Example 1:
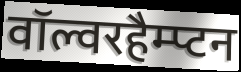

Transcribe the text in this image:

वॉल्वरहैम्प्टन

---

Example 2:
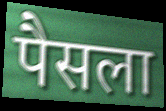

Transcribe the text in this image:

पैसला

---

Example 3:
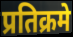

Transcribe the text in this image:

प्रतिक्रमे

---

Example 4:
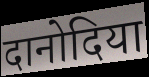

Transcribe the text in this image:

दानोदिया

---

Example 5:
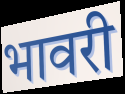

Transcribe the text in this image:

भावरी